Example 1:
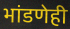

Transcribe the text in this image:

भांडणेही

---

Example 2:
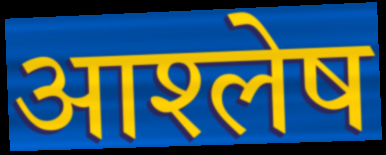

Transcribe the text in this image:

आश्लेष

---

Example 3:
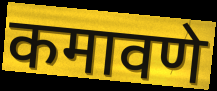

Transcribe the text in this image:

कमावणे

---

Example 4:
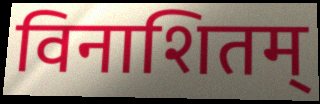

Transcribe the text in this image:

विनाशितम्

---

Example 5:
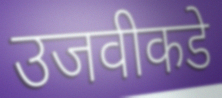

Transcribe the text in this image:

उजवीकडे